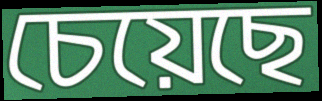
চেয়েছে